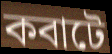
কবাটে